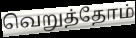
வெறுத்தோம்